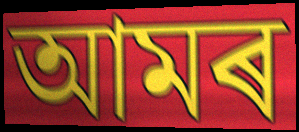
আমৰ